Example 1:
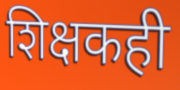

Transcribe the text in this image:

शिक्षकही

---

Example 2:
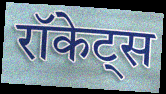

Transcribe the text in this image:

रॉकेट्स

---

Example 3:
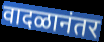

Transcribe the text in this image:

वादळानंतर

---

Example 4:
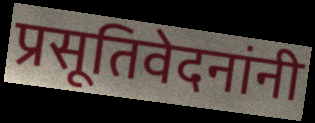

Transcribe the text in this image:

प्रसूतिवेदनांनी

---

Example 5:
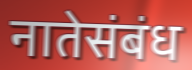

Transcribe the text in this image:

नातेसंबंध